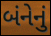
બંનેનું